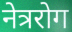
नेत्ररोग